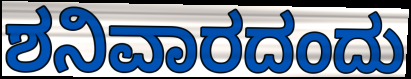
ಶನಿವಾರದಂದು